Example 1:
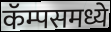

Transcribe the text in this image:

कॅम्पसमध्ये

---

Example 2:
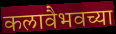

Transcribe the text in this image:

कलावैभवच्या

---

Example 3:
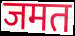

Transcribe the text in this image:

जमत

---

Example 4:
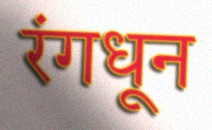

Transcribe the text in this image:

रंगधून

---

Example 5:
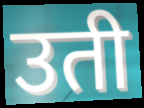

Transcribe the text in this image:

उती